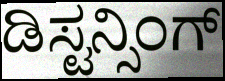
ಡಿಸ್ಟನ್ಸಿಂಗ್